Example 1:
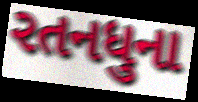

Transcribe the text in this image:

રતનધુના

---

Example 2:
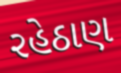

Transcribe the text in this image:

રહેઠાણ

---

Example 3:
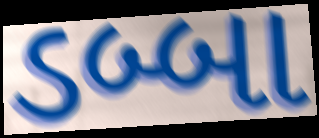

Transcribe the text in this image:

ડબ્બા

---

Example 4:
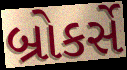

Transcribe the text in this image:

બ્રોકર્સે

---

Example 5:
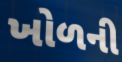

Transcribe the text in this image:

ખોળની